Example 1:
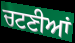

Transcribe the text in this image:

ਚਟਣੀਆਂ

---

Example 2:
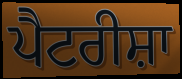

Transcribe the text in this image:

ਪੈਟਰੀਸ਼ਾ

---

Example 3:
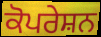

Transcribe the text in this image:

ਕੋਪਰੇਸ਼ਨ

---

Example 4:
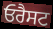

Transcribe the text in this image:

ਓਰੈਸਟ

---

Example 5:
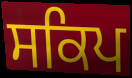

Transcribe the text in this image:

ਸਕਿਪ